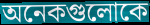
অনেকগুলোকে